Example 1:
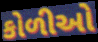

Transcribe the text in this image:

કોળીઓ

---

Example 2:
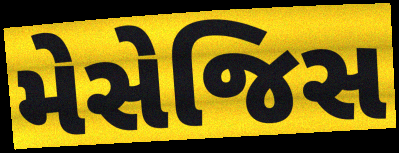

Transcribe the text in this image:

મેસેજિસ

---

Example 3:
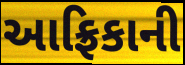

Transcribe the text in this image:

આફ્રિકાની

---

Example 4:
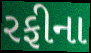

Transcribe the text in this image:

રફીના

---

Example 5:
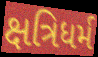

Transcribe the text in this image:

ક્ષત્રિધર્મ